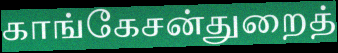
காங்கேசன்துறைத்